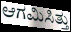
ಆಗಮಿಸಿತ್ತು